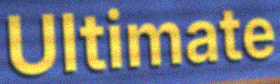
Ultimate